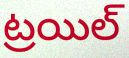
ట్రయిల్